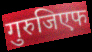
गुरुजिएफ